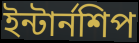
ইন্টার্নশিপ